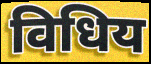
विधिय